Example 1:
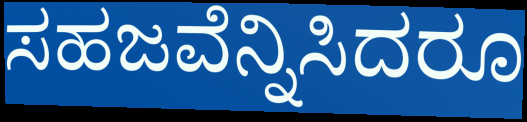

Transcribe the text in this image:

ಸಹಜವೆನ್ನಿಸಿದರೂ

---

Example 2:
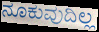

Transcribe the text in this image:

ನೂಕುವುದಿಲ್ಲ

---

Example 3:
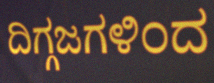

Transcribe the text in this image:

ದಿಗ್ಗಜಗಳಿಂದ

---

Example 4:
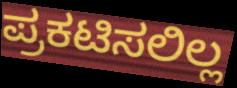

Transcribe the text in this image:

ಪ್ರಕಟಿಸಲಿಲ್ಲ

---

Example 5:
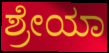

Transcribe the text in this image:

ಶ್ರೇಯಾ